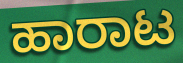
ಹಾರಾಟ